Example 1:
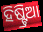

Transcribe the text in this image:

ହିଷ୍ଟ୍ରିଆ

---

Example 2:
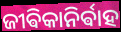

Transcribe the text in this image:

ଜୀଵିକାନିର୍ଵାହ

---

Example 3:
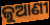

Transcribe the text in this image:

ଜୁଆଣୀ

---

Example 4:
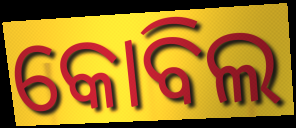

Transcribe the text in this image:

କୋବିଲ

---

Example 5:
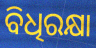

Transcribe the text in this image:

ବିଧିରକ୍ଷା